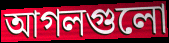
আগলগুলো